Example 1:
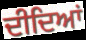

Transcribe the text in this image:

ਦੀਦਿਆਂ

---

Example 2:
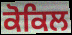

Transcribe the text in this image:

ਕੋਕਿਲ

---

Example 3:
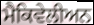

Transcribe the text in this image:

ਮੈਕਿਵੇਲੀਅਨ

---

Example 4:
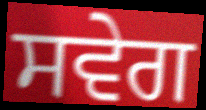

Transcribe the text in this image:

ਸਵੇਗ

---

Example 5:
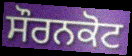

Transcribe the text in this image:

ਸੌਰਨਕੋਟ